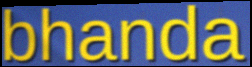
bhanda